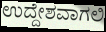
ಉದ್ದೇಶವಾಗಲಿ